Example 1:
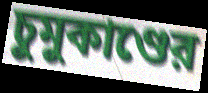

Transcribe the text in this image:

চুমুকাণ্ডের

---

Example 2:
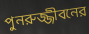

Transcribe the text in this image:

পুনরুজ্জীবনের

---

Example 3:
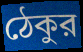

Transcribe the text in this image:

ঠেকুর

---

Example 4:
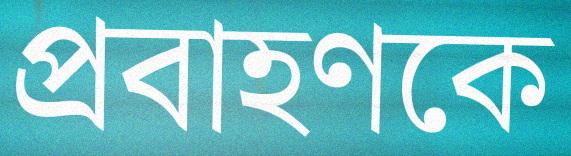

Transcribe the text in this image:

প্রবাহণকে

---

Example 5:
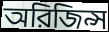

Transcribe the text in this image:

অরিজিন্স